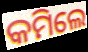
କମିଲେ